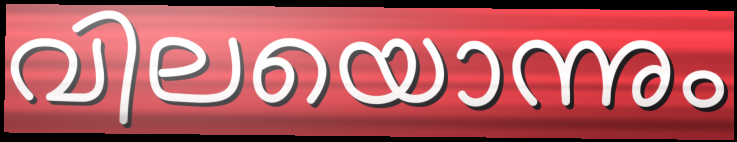
വിലയൊന്നും